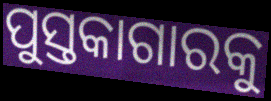
ପୁସ୍ତକାଗାରକୁ